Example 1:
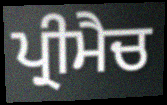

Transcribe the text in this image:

ਪ੍ਰੀਮੈਚ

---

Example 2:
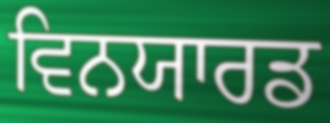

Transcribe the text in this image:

ਵਿਨਯਾਰਡ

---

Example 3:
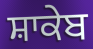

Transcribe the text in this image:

ਸ਼ਾਕੇਬ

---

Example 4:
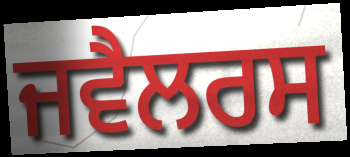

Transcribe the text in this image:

ਜਵੈਲਰਸ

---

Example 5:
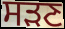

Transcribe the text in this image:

ਸੜਣ